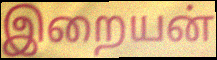
இறையன்